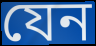
যেন